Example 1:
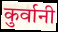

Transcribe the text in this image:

कुर्वानी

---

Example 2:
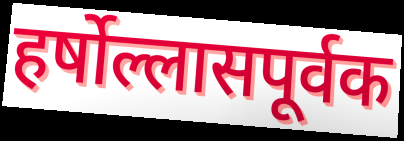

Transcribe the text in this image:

हर्षोल्लासपूर्वक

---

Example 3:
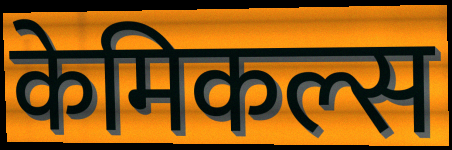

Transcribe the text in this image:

केमिकल्स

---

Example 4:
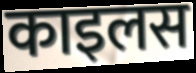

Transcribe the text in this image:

काइलस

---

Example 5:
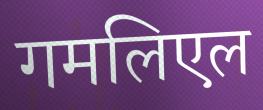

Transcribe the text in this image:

गमलिएल